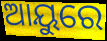
ଆୟୁରେ